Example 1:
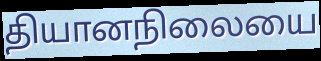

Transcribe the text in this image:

தியானநிலையை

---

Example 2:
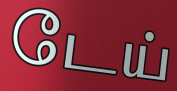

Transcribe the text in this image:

டேய்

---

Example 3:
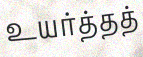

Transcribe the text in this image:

உயர்த்தத்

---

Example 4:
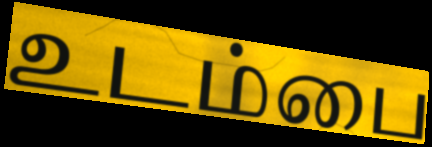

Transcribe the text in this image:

உடம்பை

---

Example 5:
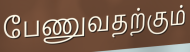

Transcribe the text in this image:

பேணுவதற்கும்